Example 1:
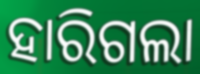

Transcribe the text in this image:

ହାରିଗଲା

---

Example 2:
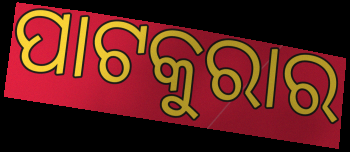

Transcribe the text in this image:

ପାଟକୁରାର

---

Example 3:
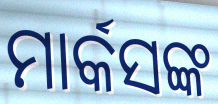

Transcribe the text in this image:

ମାର୍କସଙ୍କ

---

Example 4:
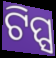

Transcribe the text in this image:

ଟିପ୍ସ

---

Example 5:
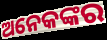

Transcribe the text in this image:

ଅନେକଙ୍କର